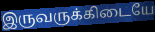
இருவருக்கிடையே